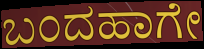
ಬಂದಹಾಗೇ